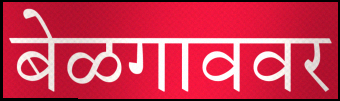
बेळगाववर